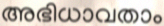
അഭിധാവതാം